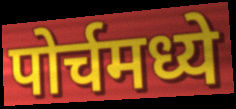
पोर्चमध्ये